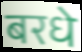
बरधे